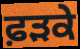
ਫ਼ਡ਼ਕੇ